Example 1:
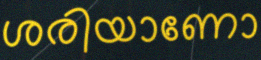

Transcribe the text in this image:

ശരിയാണോ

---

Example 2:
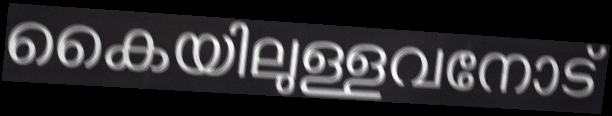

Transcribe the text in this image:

കൈയിലുള്ളവനോട്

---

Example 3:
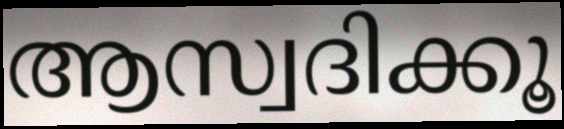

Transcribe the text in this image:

ആസ്വദിക്കൂ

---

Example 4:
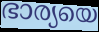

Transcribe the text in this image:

ഭാര്യയെ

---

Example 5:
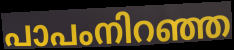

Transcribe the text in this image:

പാപംനിറഞ്ഞ